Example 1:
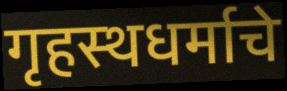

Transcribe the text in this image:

गृहस्थधर्माचे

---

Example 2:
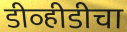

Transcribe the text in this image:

डीव्हीडीचा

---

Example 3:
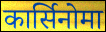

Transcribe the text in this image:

कार्सिनोमा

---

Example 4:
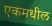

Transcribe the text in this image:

एकमधील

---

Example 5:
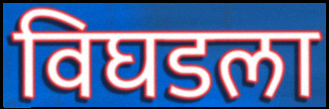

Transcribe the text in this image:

विघडला